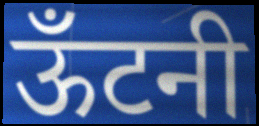
ऊँटनी